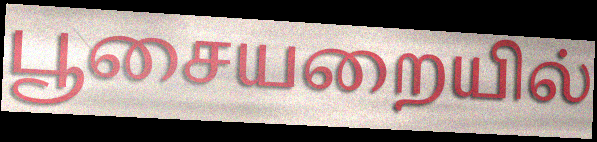
பூசையறையில்